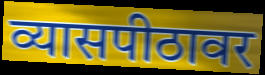
व्यासपीठावर